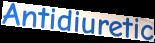
Antidiuretic